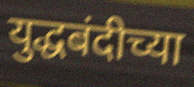
युद्धबंदीच्या